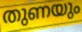
തുണയും